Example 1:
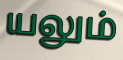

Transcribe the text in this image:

யலும்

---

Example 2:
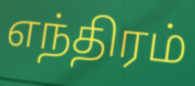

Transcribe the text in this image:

எந்திரம்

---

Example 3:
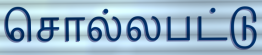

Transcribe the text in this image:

சொல்லபட்டு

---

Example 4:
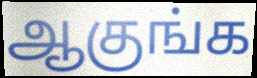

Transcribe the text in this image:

ஆகுங்க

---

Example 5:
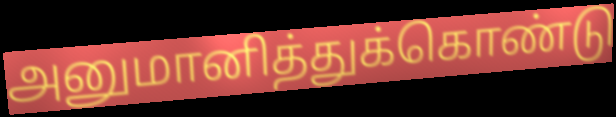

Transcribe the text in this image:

அனுமானித்துக்கொண்டு